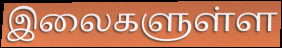
இலைகளுள்ள